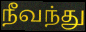
நீவந்து